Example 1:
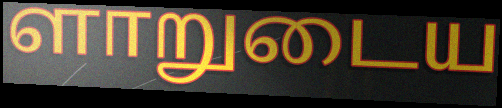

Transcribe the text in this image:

ளாறுடைய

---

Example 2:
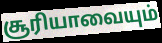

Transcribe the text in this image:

சூரியாவையும்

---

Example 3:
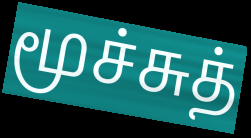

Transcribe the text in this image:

மூச்சுத்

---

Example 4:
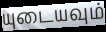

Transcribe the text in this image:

யுடையவும்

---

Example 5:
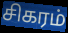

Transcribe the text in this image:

சிகரம்